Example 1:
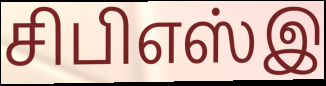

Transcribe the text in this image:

சிபிஎஸ்இ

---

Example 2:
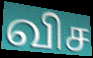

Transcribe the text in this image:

விச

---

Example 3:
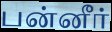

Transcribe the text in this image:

பன்னீர்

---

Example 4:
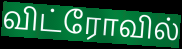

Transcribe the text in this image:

விட்ரோவில்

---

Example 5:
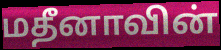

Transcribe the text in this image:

மதீனாவின்